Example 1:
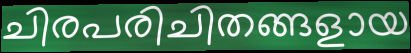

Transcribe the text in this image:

ചിരപരിചിതങ്ങളായ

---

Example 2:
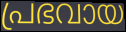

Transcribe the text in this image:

പ്രഭവായ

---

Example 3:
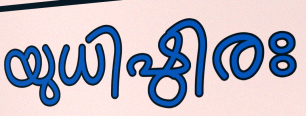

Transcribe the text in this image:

യുധിഷ്ഠിരഃ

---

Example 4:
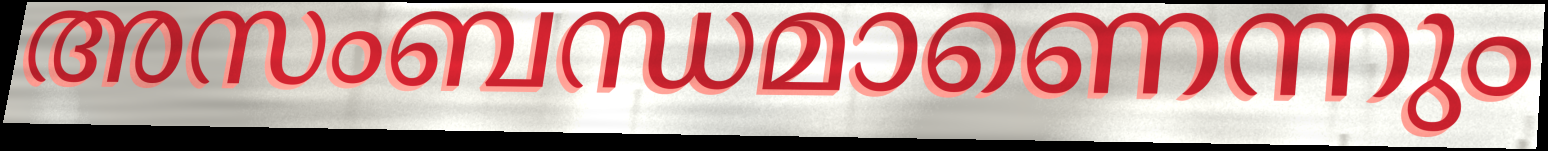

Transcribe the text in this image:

അസംബന്ധമാണെന്നും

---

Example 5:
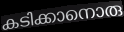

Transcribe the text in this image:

കടിക്കാനൊരു